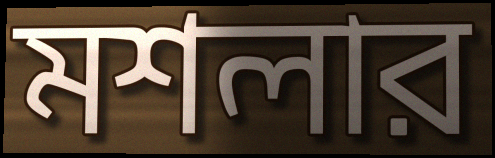
মশলার